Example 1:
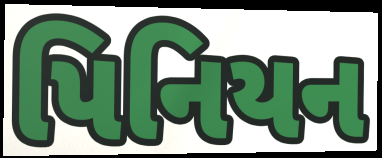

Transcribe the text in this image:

પિનિયન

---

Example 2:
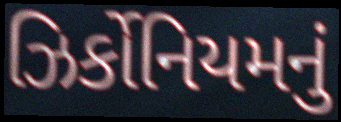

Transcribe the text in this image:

ઝિર્કોનિયમનું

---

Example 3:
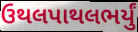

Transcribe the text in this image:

ઉથલપાથલભર્યું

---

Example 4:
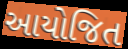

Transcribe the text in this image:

આયોજિત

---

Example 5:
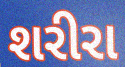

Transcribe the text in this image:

શરીરા